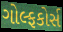
ગોલ્ફકોર્સ